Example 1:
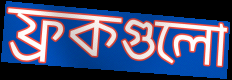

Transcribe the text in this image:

ফ্রকগুলো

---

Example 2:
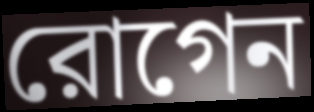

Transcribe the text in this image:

রোগেন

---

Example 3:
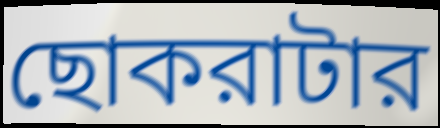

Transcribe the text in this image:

ছোকরাটার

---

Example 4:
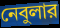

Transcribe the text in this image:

নেবুলার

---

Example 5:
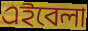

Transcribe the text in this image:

এইবেলা